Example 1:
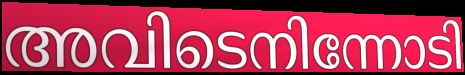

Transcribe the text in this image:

അവിടെനിന്നോടി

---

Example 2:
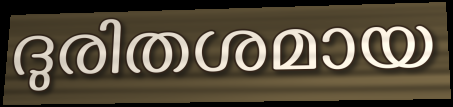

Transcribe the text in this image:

ദുരിതശമായ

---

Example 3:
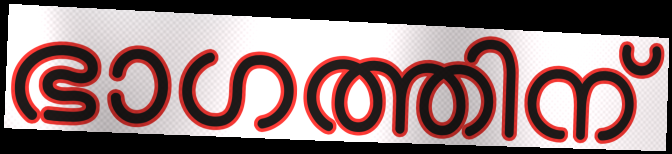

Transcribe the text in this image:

ഭാഗത്തിന്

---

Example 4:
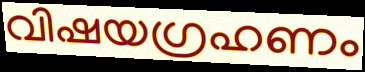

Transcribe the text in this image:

വിഷയഗ്രഹണം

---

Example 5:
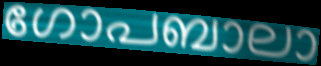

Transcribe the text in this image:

ഗോപബാലാ